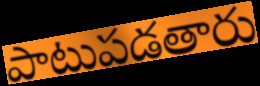
పాటుపడతారు